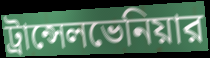
ট্রান্সেলভেনিয়ার